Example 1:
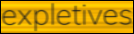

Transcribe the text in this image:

expletives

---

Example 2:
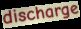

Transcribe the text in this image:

discharge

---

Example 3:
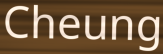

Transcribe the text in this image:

Cheung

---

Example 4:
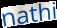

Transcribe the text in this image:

nathi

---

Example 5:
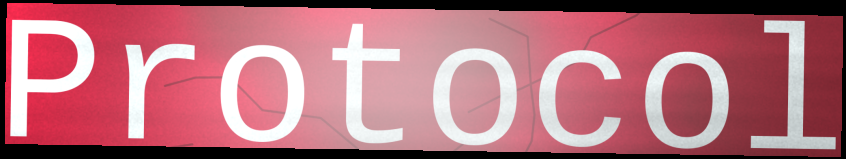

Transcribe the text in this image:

Protocol